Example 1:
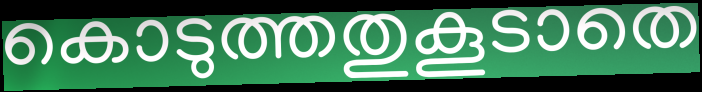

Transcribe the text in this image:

കൊടുത്തതുകൂടാതെ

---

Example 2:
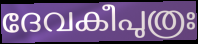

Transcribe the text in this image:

ദേവകീപുത്രഃ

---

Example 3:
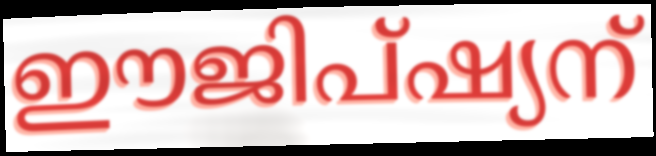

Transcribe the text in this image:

ഈജിപ്ഷ്യന്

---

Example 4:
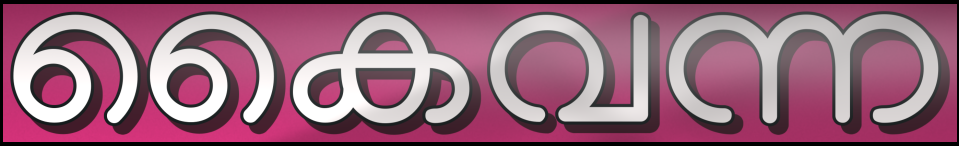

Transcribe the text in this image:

കൈവന്ന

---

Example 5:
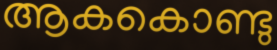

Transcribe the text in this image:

ആകകൊണ്ടു